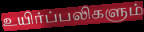
உயிர்ப்பலிகளும்